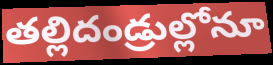
తల్లిదండ్రుల్లోనూ